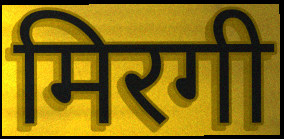
मिरगी